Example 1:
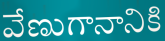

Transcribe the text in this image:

వేణుగానానికి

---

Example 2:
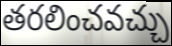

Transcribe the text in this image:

తరలించవచ్చు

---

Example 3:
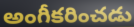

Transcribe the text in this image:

అంగీకరించడు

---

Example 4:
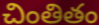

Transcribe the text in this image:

చింతితం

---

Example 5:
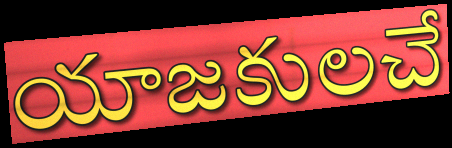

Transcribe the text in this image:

యాజకులచే